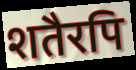
शतैरपि